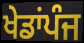
ਖੇਡਾਂਪੰਜ